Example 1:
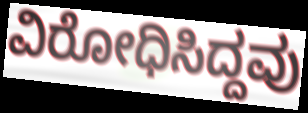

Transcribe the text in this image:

ವಿರೋಧಿಸಿದ್ದವು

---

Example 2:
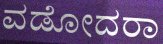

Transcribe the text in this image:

ವಡೋದರಾ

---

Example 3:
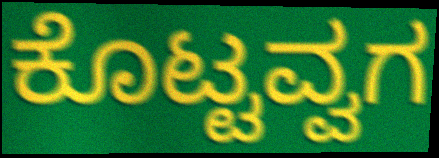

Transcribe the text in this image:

ಕೊಟ್ಟವ್ವಗ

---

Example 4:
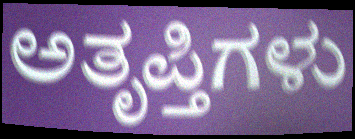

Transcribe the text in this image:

ಅತೃಪ್ತಿಗಳು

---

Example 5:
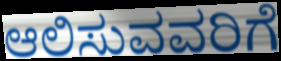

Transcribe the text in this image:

ಆಲಿಸುವವರಿಗೆ